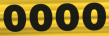
oooo